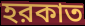
হরকাত